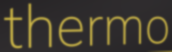
thermo